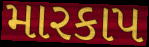
મારકાપ